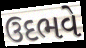
ઉદભવે